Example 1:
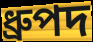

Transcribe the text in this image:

ধ্ৰুপদ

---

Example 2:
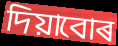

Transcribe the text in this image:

দিয়াবোৰ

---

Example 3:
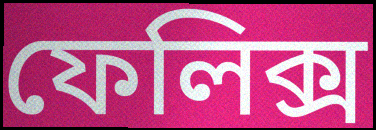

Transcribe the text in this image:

ফেলিক্স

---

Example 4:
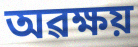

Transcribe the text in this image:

অৱক্ষয়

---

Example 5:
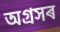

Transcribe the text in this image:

অগ্ৰসৰ